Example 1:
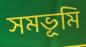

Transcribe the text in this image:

সমভূমি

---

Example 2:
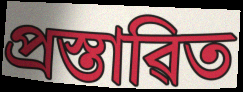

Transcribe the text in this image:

প্ৰস্তাৱিত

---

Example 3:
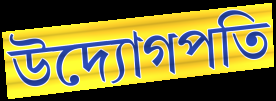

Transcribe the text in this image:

উদ্যোগপতি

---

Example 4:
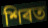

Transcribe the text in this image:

শিৰত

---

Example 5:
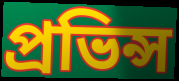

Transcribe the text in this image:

প্ৰভিন্স